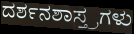
ದರ್ಶನಶಾಸ್ತ್ರಗಳು